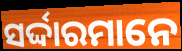
ସର୍ଦ୍ଦାରମାନେ